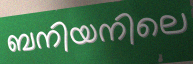
ബനിയനിലെ